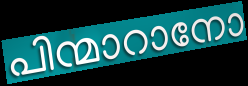
പിന്മാറാനോ